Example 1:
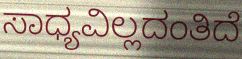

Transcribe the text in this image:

ಸಾಧ್ಯವಿಲ್ಲದಂತಿದೆ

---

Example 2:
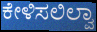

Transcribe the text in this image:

ಕೇಳಿಸಲಿಲ್ವಾ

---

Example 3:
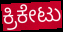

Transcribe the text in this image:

ಕ್ರಿಕೇಟು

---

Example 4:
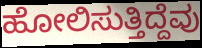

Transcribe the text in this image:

ಹೋಲಿಸುತ್ತಿದ್ದೆವು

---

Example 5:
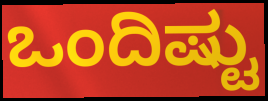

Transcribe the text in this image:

ಒಂದಿಷ್ಟು